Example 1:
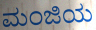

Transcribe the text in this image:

ಮಂಜಿಯ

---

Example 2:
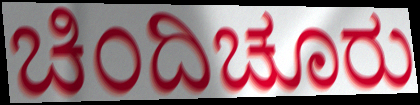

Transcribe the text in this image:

ಚಿಂದಿಚೂರು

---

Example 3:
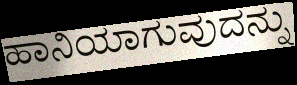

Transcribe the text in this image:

ಹಾನಿಯಾಗುವುದನ್ನು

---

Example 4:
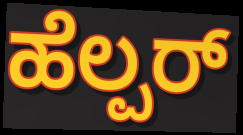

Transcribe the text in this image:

ಹೆಲ್ಪರ್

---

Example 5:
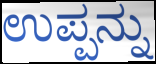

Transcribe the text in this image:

ಉಪ್ಪನ್ನು